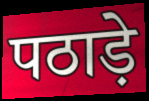
पठाड़े